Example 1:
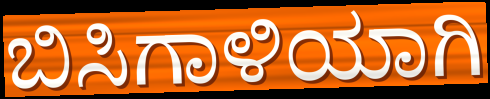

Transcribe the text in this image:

ಬಿಸಿಗಾಳಿಯಾಗಿ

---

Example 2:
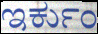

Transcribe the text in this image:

ಇರ್ಕುಂ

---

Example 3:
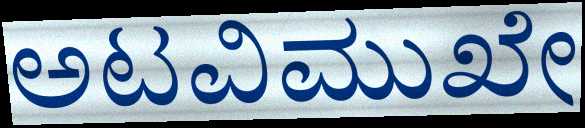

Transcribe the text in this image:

ಅಟವಿಮುಖೇ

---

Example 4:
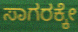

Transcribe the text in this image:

ಸಾಗರಕ್ಕೇ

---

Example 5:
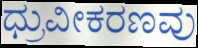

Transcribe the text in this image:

ಧ್ರುವೀಕರಣವು